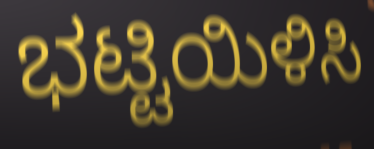
ಭಟ್ಟಿಯಿಳಿಸಿ